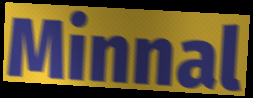
Minnal